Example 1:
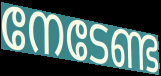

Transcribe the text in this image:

നേടേണ്ട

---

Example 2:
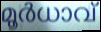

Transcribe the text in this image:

മൂർധാവ്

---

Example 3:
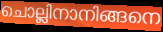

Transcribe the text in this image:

ചൊല്ലിനാനിങ്ങനെ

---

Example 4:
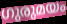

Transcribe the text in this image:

ഗുരുമയം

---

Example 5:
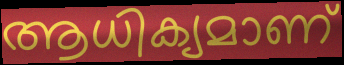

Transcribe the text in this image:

ആധിക്യമാണ്